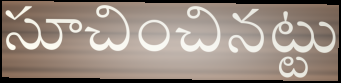
సూచించినట్టు